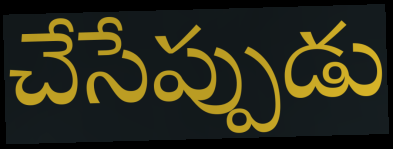
చేసేప్పుడు